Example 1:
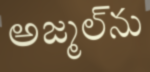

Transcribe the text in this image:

అజ్మల్‌ను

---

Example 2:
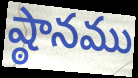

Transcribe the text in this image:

ష్ఠానము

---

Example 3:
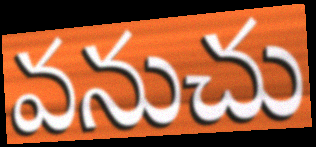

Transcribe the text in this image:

వనుచు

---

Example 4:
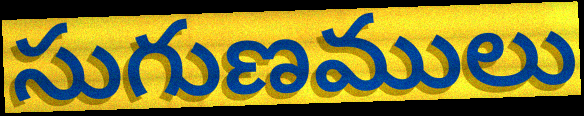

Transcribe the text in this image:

సుగుణములు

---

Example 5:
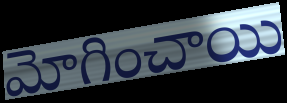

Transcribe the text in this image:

మోగించాయి